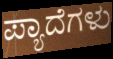
ಪ್ಯಾದೆಗಳು